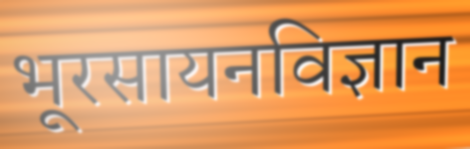
भूरसायनविज्ञान